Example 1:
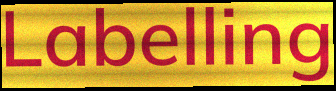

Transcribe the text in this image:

Labelling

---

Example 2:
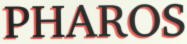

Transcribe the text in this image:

PHAROS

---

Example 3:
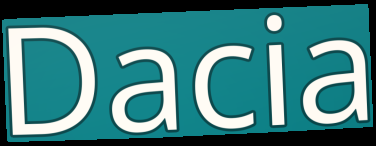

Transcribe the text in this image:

Dacia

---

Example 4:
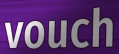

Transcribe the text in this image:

vouch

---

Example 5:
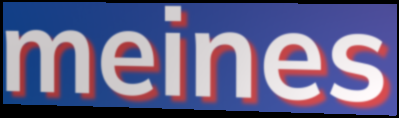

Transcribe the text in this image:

meines